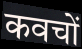
कवचों